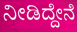
ನೀಡಿದ್ದೇನೆ